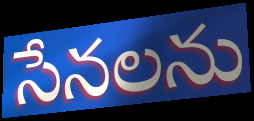
సేనలను